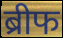
ब्रीफ